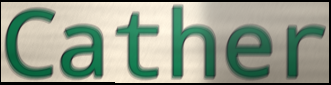
Cather